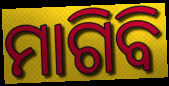
ମାଗିବି